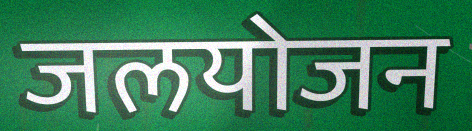
जलयोजन